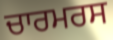
ਚਾਰਮਰਸ